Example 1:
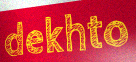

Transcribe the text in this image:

dekhto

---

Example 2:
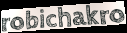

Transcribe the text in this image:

robichakro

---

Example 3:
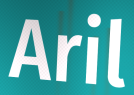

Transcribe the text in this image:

Aril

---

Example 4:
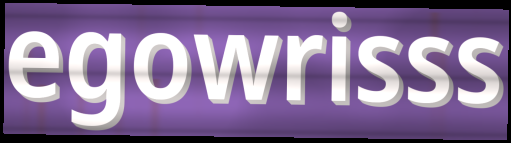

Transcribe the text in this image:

egowrisss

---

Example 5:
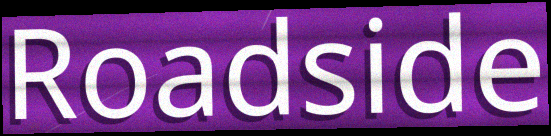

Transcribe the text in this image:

Roadside